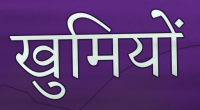
खुमियों